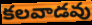
కలవాడవు